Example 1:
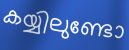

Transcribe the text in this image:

കയ്യിലുണ്ടോ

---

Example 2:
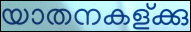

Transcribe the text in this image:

യാതനകള്ക്കു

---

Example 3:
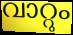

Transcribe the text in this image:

വാറ്റും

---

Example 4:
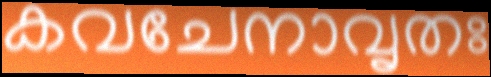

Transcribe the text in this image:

കവചേനാവൃതഃ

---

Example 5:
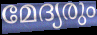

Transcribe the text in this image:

മേദ്യരും